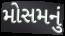
મોસમનું